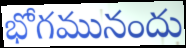
భోగమునందు